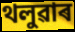
থলুৱাৰ